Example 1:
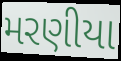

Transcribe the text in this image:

મરણીયા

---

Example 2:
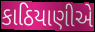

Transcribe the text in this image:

કાઠિયાણીએ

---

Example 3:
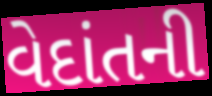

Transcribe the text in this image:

વેદાંતની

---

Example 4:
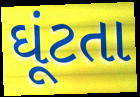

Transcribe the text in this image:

ઘૂંટતા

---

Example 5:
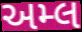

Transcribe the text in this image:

અમ્લ